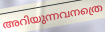
അറിയുന്നവനത്രെ